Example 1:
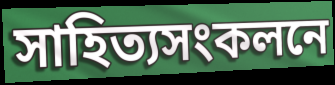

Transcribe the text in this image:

সাহিত্যসংকলনে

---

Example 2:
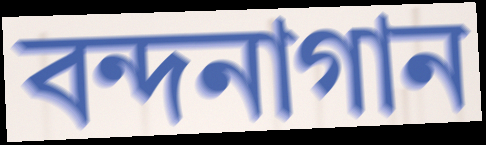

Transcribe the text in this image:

বন্দনাগান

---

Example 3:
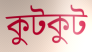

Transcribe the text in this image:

কুটকুট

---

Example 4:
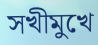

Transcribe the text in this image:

সখীমুখে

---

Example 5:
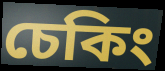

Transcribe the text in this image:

চেকিং